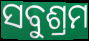
ସବୁଶ୍ରମ